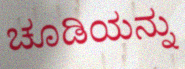
ಚೂಡಿಯನ್ನು